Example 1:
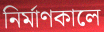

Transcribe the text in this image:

নির্মাণকালে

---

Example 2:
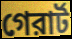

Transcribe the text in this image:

গেরার্ট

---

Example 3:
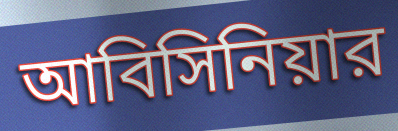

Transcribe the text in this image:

আবিসিনিয়ার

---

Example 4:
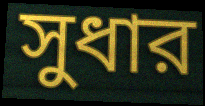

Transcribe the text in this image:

সুধার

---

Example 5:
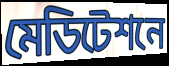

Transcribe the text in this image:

মেডিটেশনে